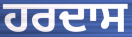
ਹਰਦਾਸ